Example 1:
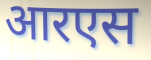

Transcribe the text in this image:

आरएस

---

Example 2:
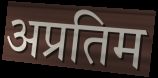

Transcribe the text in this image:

अप्रतिम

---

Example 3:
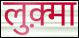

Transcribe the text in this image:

लुक़्मा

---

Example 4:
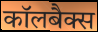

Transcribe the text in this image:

कॉलबैक्स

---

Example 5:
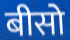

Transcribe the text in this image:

बीसो